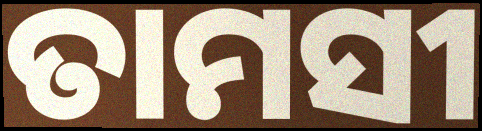
ତାମସୀ